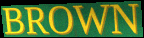
BROWN